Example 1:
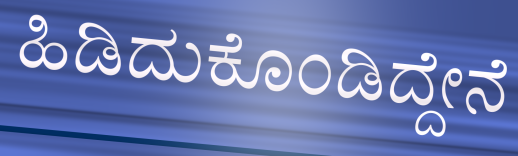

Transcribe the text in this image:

ಹಿಡಿದುಕೊಂಡಿದ್ದೇನೆ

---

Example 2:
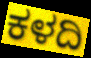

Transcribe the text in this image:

ಕಳದಿ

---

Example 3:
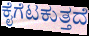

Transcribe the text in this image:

ಕೈಗೆಟಕುತ್ತದೆ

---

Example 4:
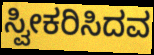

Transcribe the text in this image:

ಸ್ವೀಕರಿಸಿದವ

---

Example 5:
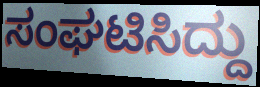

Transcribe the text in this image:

ಸಂಘಟಿಸಿದ್ದು